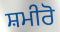
ਸ਼ਮੀਰੋ